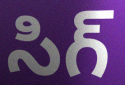
సిగ్